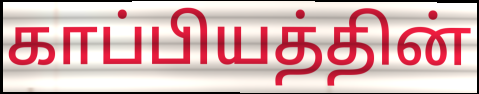
காப்பியத்தின்